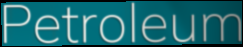
Petroleum